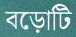
বড়োটি